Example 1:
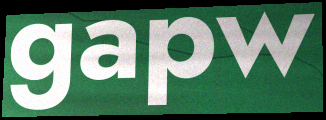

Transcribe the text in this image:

gapw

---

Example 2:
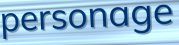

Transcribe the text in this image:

personage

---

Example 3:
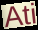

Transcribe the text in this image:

Ati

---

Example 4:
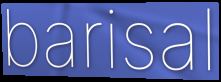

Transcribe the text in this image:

barisal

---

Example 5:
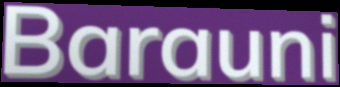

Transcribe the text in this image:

Barauni